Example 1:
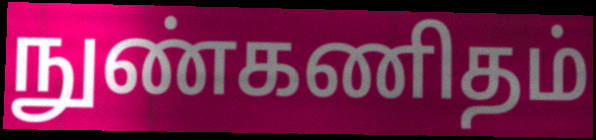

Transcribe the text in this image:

நுண்கணிதம்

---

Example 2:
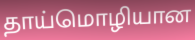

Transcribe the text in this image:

தாய்மொழியான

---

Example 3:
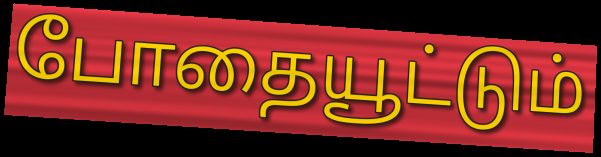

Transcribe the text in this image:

போதையூட்டும்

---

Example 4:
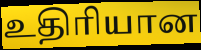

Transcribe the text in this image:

உதிரியான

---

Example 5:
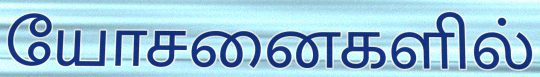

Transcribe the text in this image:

யோசனைகளில்